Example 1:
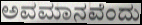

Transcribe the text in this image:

ಅವಮಾನವೆಂದು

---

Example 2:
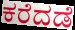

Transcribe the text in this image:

ಕರೆದಡೆ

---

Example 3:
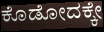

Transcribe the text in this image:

ಕೊಡೋದಕ್ಕೇ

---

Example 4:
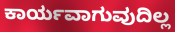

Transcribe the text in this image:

ಕಾರ್ಯವಾಗುವುದಿಲ್ಲ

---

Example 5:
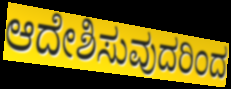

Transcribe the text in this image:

ಆದೇಶಿಸುವುದರಿಂದ